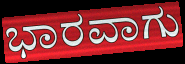
ಭಾರವಾಗು